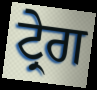
ਟ੍ਰੇਗ